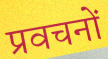
प्रवचनों